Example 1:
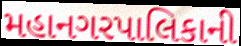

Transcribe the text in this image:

મહાનગરપાલિકાની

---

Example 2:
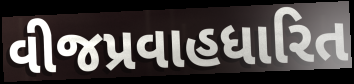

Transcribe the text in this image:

વીજપ્રવાહધારિત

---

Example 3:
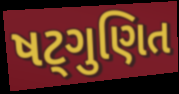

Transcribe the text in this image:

ષટ્ગુણિત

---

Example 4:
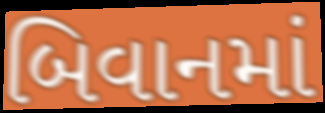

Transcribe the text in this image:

બિવાનમાં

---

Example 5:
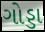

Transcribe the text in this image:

ગોડ્ડા